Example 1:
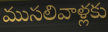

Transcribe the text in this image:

ముసలివాళ్లకు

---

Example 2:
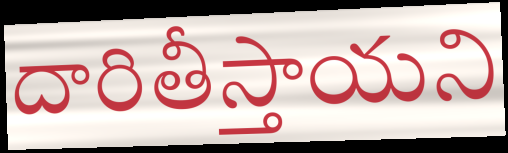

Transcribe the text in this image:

దారితీస్తాయని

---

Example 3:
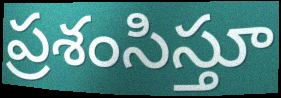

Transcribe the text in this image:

ప్రశంసిస్తూ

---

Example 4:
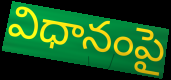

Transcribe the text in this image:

విధానంపై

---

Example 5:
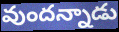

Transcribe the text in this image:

వుందన్నాడు